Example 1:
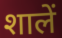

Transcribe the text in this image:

शालें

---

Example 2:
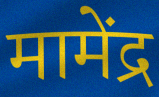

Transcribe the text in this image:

मामेंद्र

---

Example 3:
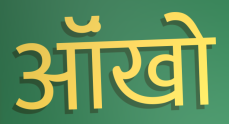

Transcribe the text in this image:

ऑंखो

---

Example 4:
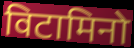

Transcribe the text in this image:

विटामिनो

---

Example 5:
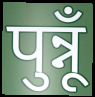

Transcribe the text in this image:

पुन्नूँ